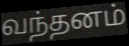
வந்தனம்